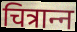
चित्रान्न